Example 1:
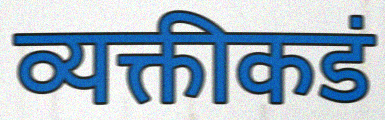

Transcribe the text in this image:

व्यक्तीकडं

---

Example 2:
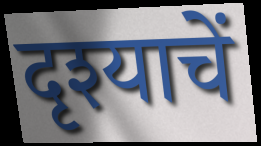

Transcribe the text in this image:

दृश्याचें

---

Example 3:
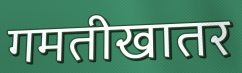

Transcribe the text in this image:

गमतीखातर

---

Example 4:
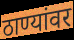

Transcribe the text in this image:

ठाण्यांवर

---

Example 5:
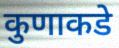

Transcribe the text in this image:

कुणाकडे